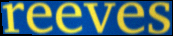
reeves